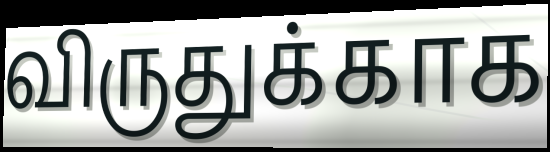
விருதுக்காக